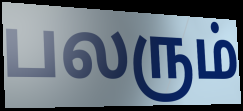
பலரும்